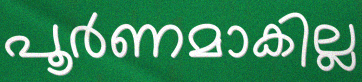
പൂർണമാകില്ല